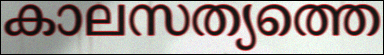
കാലസത്യത്തെ